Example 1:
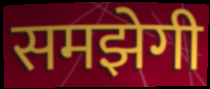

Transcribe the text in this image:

समझेगी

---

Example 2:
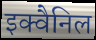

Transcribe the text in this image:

इक्वैनिल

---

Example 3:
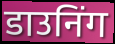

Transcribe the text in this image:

डाउनिंग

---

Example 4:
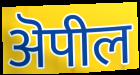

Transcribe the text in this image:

ऄपील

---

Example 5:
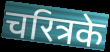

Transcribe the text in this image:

चरित्रके